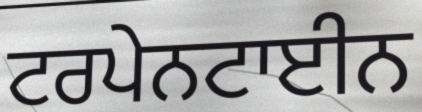
ਟਰਪੇਨਟਾਈਨ